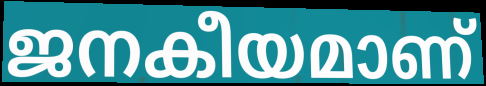
ജനകീയമാണ്